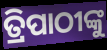
ତ୍ରିପାଠୀଙ୍କୁ